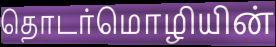
தொடர்மொழியின்